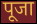
पूजा